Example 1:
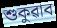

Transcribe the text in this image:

শুকুৱাব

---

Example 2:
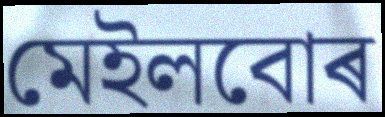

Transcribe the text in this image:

মেইলবোৰ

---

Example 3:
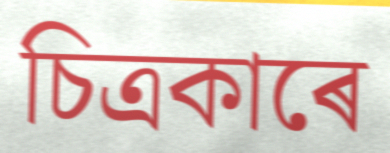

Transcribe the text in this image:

চিত্ৰকাৰে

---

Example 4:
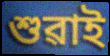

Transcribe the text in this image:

শুৱাই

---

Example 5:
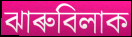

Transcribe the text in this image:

ঝাৰুবিলাক